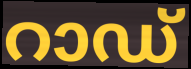
റാഡ്